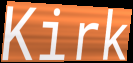
Kirk